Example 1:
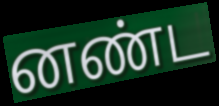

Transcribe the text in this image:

னண்ட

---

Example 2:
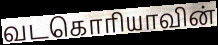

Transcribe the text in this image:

வடகொரியாவின்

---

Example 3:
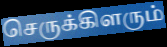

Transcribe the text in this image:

செருக்கிளரும்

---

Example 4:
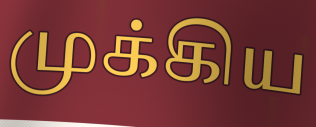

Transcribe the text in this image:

முக்கிய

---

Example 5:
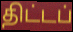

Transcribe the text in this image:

திட்டப்